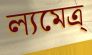
ল্যমেত্র্